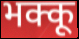
भक्कू